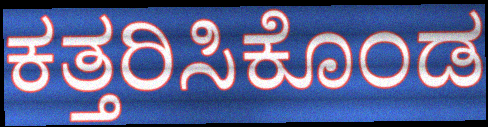
ಕತ್ತರಿಸಿಕೊಂಡ